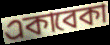
একাবেকা